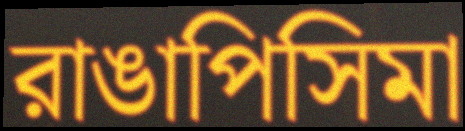
রাঙাপিসিমা